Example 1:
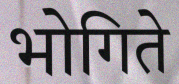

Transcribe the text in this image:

भोगिते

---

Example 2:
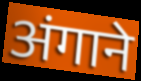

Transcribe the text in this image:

अंगाने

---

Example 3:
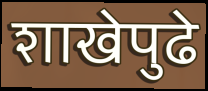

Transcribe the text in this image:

शाखेपुढे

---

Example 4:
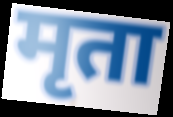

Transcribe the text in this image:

मृता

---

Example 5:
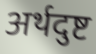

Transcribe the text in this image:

अर्थदुष्ट